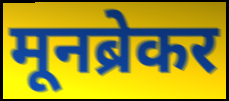
मूनब्रेकर